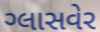
ગ્લાસવેર